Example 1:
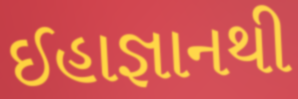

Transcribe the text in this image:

ઈહાજ્ઞાનથી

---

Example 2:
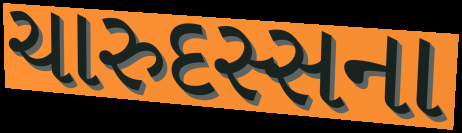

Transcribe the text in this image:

ચારુદસ્સના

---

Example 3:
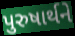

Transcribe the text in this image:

પુરુષાર્થને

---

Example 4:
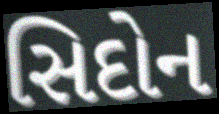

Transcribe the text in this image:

સિદોન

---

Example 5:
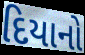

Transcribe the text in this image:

દિયાનો